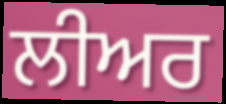
ਲੀਅਰ